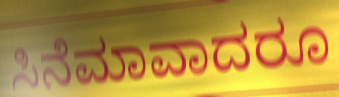
ಸಿನೆಮಾವಾದರೂ